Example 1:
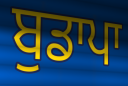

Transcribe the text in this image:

ਬੁਡਾਪਾ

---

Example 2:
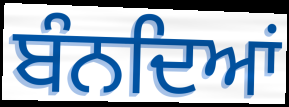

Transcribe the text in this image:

ਬੰਨਦਿਆਂ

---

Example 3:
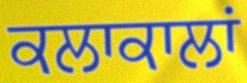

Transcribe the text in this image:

ਕਲਾਕਾਲਾਂ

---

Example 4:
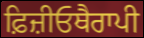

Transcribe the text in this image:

ਫ਼ਿਜ਼ੀਓਥੈਰਾਪੀ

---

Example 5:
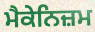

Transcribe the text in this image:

ਮੈਕੇਨਿਜ਼ਮ